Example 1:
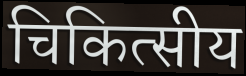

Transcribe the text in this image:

चिकित्सीय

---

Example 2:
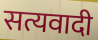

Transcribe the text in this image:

सत्यवादी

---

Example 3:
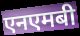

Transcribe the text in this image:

एनएमबी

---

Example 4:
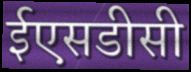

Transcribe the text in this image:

ईएसडीसी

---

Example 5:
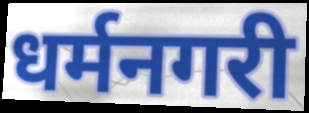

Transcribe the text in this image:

धर्मनगरी